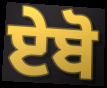
ਏਬੋ